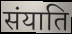
संयाति